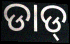
ଡାଡ୍